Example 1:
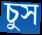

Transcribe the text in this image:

চুস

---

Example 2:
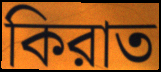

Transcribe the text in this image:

কিরাত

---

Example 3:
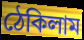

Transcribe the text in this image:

ঠেকিলাম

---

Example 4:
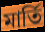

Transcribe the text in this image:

মার্তি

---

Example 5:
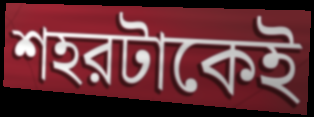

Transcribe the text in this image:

শহরটাকেই